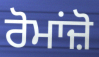
ਰੋਮਾਂਜ਼ੋ